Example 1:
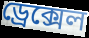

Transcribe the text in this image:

ড্রেক্সেল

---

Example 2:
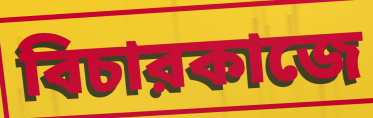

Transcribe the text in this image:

বিচারকাজে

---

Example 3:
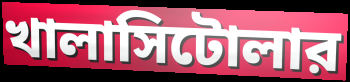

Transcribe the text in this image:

খালাসিটোলার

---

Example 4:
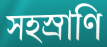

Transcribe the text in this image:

সহস্রাণি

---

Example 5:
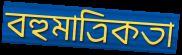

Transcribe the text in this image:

বহুমাত্রিকতা